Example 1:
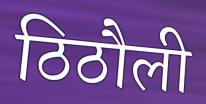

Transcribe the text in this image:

ठिठौली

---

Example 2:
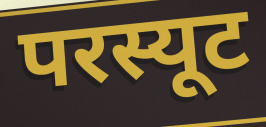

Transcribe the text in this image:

परस्यूट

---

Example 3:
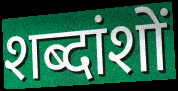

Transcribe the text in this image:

शब्दांशों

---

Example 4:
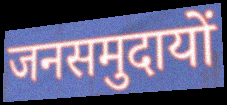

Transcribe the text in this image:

जनसमुदायों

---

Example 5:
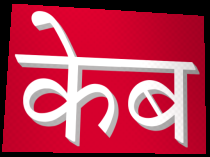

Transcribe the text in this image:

केब